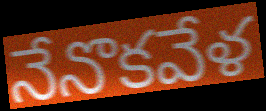
నేనొకవేళ